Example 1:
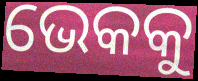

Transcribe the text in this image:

ଭେକକୁ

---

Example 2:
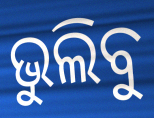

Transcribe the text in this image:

ଭୁଲିବୁ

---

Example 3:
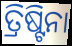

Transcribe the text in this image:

ତ୍ରିଷ୍ଟିନା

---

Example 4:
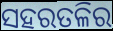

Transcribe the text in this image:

ସହରତଳିର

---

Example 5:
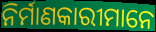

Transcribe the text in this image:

ନିର୍ମାଣକାରୀମାନେ